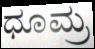
ಧೂಮ್ರ